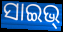
ସାଇଭ୍